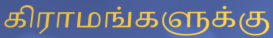
கிராமங்களுக்கு